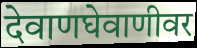
देवाणघेवाणीवर